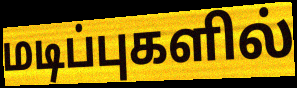
மடிப்புகளில்